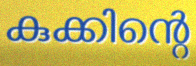
കുക്കിന്റെ